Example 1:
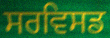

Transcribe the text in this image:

ਸਰਵਿਸਡ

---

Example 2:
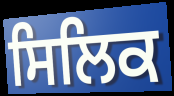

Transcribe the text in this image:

ਸਿਲਿਕ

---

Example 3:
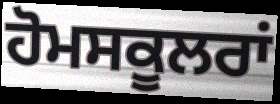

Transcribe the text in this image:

ਹੋਮਸਕੂਲਰਾਂ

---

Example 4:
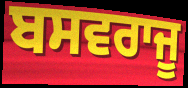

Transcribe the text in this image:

ਬਸਵਰਾਜੂ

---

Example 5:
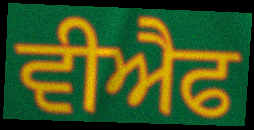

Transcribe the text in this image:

ਵੀਐਫ